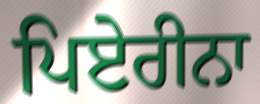
ਪਿਏਰੀਨਾ